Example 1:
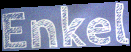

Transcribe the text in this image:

Enkel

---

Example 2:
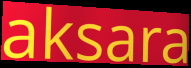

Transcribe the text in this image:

aksara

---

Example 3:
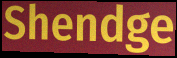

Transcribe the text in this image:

Shendge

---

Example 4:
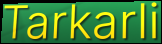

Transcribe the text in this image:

Tarkarli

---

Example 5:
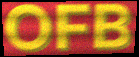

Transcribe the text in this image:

OFB